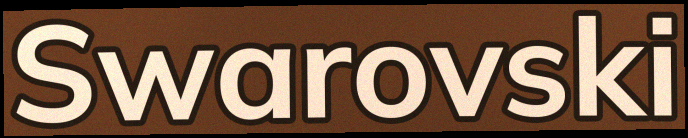
Swarovski